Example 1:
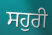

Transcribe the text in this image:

ਸਹੁਰੀ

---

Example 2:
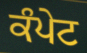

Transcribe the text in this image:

ਕੰਪੇਟ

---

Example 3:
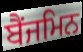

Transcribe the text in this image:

ਬੈਂਜਮਿਨ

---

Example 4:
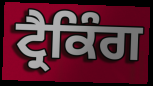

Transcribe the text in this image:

ਟ੍ਰੈਕਿੰਗ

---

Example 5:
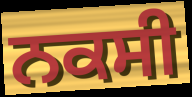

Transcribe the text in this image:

ਨਕਸੀ